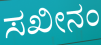
ಸಖೀನಂ